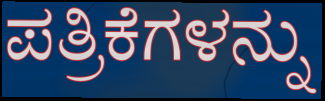
ಪತ್ರಿಕೆಗಳನ್ನು